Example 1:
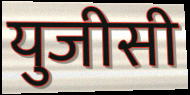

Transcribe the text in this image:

युजीसी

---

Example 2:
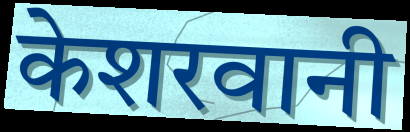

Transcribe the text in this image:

केशरवानी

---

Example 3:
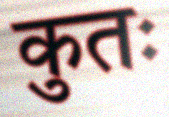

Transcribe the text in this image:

कुतः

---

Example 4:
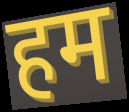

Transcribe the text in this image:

हम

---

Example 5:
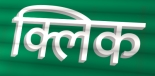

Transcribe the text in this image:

क्लिक